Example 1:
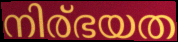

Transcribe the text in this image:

നിര്ഭയത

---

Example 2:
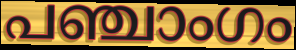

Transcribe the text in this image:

പഞ്ചാംഗം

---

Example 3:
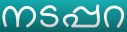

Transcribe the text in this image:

നടപ്പറ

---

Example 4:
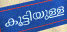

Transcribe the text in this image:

കൂട്ടിയുള്ള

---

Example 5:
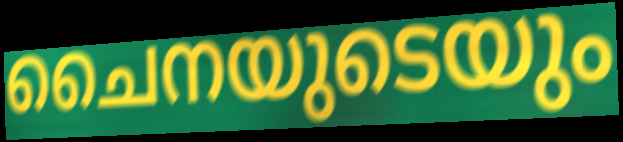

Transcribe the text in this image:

ചൈനയുടെയും